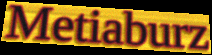
Metiaburz